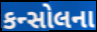
કન્સોલના